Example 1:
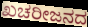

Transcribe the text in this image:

ಖಚರೀಜನದ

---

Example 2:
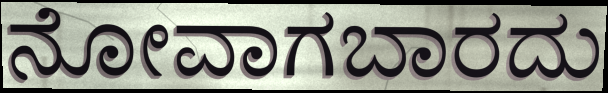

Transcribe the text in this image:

ನೋವಾಗಬಾರದು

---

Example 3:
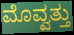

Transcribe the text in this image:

ಮೊವ್ವತ್ತು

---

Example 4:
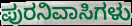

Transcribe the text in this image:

ಪುರನಿವಾಸಿಗಳು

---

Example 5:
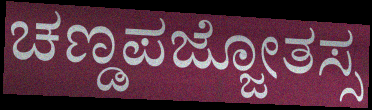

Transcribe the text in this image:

ಚಣ್ಡಪಜ್ಜೋತಸ್ಸ